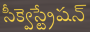
సీక్వెస్ట్రేషన్